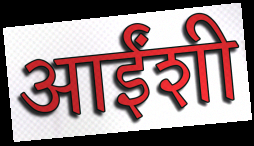
आईंशी